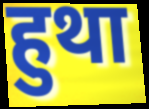
हुथा